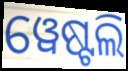
ୱେଷ୍ଟଲି